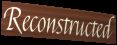
Reconstructed